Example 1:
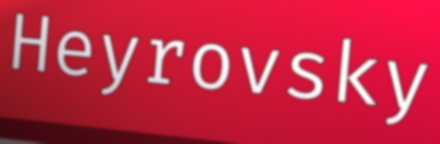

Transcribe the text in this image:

Heyrovsky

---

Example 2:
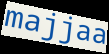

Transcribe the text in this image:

majjaa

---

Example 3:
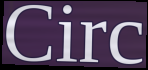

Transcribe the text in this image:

Circ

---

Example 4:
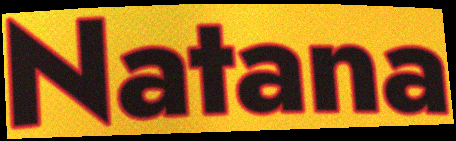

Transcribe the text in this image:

Natana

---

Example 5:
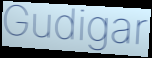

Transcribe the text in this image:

Gudigar